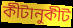
কীটানুকীট